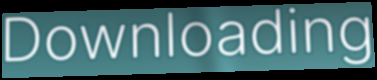
Downloading